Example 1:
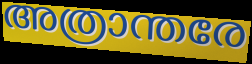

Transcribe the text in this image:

അത്രാന്തരേ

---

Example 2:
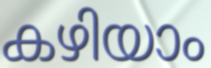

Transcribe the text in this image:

കഴിയാം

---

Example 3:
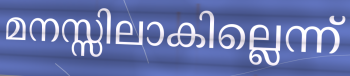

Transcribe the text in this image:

മനസ്സിലാകില്ലെന്ന്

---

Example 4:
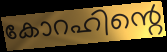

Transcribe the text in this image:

കോറഹിന്റെ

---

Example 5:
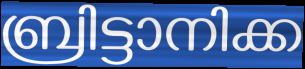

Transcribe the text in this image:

ബ്രിട്ടാനിക്ക